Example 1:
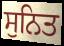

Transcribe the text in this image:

ਸੁਨਿਤ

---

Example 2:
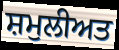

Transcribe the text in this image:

ਸ਼ਮੁਲੀਅਤ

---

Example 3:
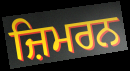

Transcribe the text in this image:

ਜ਼ਿਮਰਨ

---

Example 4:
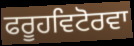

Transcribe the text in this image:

ਫਰੂਹਵਿਟੋਰਵਾ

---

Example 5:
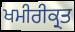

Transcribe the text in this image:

ਖਮੀਰੀਕ੍ਰਤ